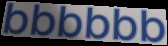
bbbbbb